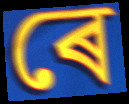
ৰে